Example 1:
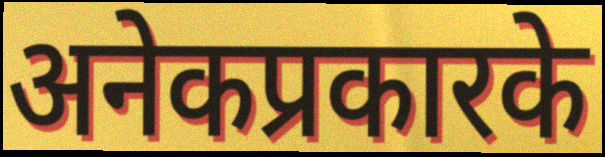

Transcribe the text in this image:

अनेकप्रकारके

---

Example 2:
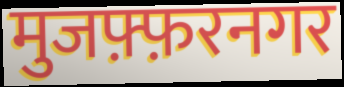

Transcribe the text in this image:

मुजफ़्फ़रनगर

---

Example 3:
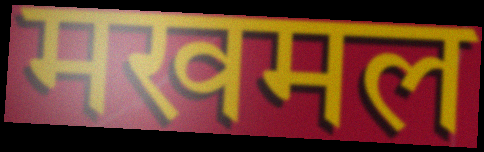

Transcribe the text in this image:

मखमल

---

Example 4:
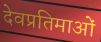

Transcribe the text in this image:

देवप्रतिमाओं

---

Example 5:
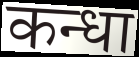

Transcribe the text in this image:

कन्धा